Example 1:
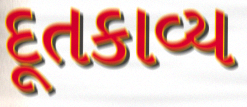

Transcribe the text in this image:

દૂતકાવ્ય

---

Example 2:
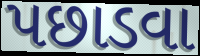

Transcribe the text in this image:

પછાડવા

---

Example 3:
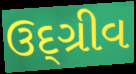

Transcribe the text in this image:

ઉદ્ગ્રીવ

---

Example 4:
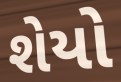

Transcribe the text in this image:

શેયો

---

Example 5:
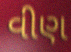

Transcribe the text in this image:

વીણ